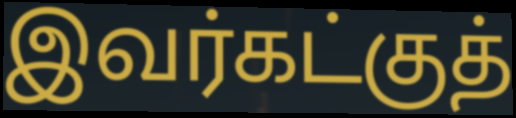
இவர்கட்குத்